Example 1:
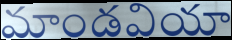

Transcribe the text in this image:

మాండవియా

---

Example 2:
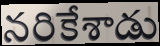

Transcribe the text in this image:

నరికేశాడు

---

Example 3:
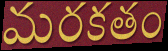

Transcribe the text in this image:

మరకతం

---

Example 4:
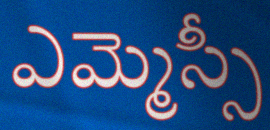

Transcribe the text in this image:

ఎమ్మెస్సీ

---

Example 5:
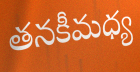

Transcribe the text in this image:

తనకీమధ్య